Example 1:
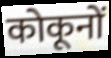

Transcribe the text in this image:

कोकूनों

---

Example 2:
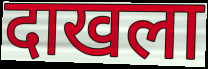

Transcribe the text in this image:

दाखला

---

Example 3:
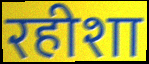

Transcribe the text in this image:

रहीशा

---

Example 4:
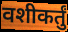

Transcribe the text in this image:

वशीकर्तुं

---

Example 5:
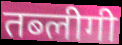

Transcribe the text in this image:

तब्‍लीगी